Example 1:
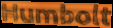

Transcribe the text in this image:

Humbolt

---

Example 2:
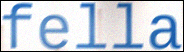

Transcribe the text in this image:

fella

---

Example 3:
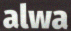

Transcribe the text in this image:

alwa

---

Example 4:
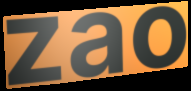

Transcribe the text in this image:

zao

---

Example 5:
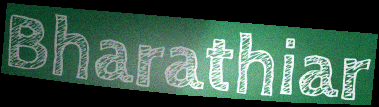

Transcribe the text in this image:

Bharathiar